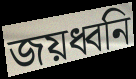
জয়ধ্বনি